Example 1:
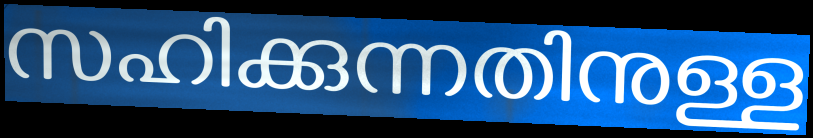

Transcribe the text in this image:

സഹിക്കുന്നതിനുള്ള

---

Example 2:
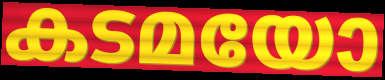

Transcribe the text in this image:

കടമയോ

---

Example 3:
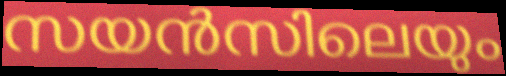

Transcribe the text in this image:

സയൻസിലെയും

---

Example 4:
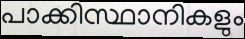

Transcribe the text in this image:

പാക്കിസ്ഥാനികളും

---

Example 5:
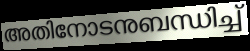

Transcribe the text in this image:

അതിനോടനുബന്ധിച്ച്